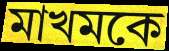
মাখমকে